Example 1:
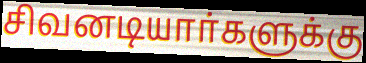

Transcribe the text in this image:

சிவனடியார்களுக்கு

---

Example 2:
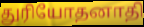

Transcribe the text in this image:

துரியோதனாதி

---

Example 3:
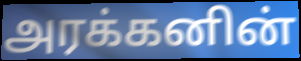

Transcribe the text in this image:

அரக்கனின்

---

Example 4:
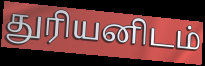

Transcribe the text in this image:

துரியனிடம்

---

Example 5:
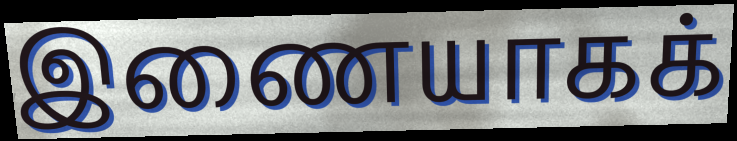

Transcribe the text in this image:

இணையாகக்